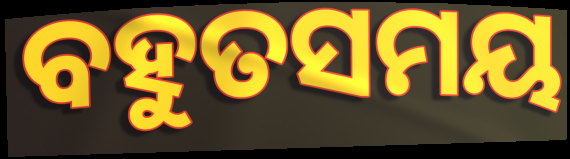
ବହୁତସମୟ